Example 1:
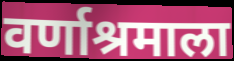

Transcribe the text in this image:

वर्णाश्रमाला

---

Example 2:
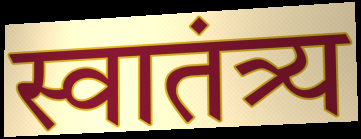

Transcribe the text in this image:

स्वातंत्र्य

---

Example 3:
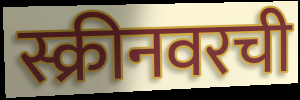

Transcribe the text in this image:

स्क्रीनवरची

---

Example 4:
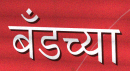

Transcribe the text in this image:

बँडच्या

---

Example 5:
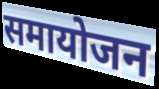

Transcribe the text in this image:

समायोजन